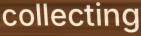
collecting